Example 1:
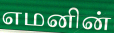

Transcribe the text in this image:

எமனின்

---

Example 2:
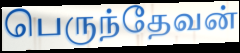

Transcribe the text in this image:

பெருந்தேவன்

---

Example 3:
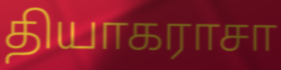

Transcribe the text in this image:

தியாகராசா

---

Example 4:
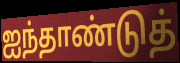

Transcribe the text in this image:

ஐந்தாண்டுத்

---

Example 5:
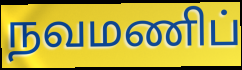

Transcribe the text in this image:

நவமணிப்